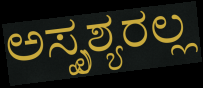
ಅಸ್ಪೃಶ್ಯರಲ್ಲ